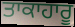
ਤਾਕਾਹਾਰੂ